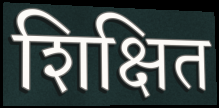
शिक्षित